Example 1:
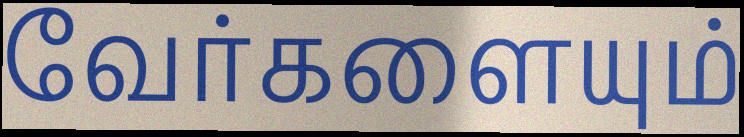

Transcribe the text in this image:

வேர்களையும்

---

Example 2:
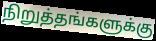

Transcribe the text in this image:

நிறுத்தங்களுக்கு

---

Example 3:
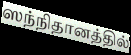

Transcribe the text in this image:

ஸந்நிதானத்தில்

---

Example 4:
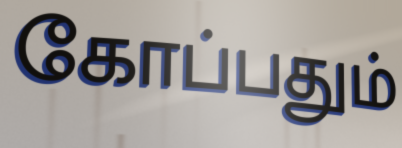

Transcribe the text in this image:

கோப்பதும்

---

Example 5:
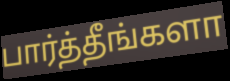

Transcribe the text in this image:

பார்த்தீங்களா